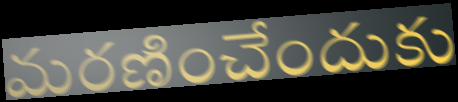
మరణించేందుకు